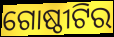
ଗୋଷ୍ଠୀଟିର